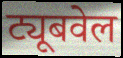
ट्यूबवेल